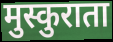
मुस्कुराता